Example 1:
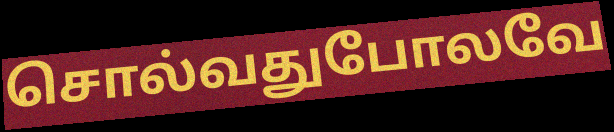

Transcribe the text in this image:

சொல்வதுபோலவே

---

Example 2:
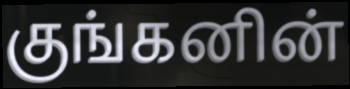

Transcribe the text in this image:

குங்கனின்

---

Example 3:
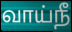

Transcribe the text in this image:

வாய்நீ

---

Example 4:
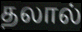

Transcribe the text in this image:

தலால்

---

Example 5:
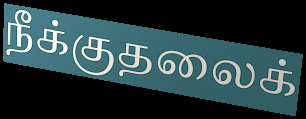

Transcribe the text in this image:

நீக்குதலைக்